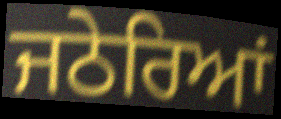
ਜਠੇਰਿਆਂ